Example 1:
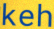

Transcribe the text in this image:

keh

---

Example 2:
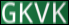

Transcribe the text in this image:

GKVK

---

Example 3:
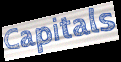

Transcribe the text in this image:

Capitals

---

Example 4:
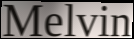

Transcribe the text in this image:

Melvin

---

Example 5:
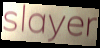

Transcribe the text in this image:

slayer